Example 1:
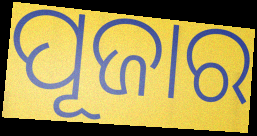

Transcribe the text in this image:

ପୂଜାର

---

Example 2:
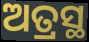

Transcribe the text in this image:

ଅତ୍ରସ୍ଥ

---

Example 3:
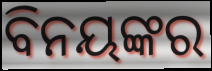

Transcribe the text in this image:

ବିନୟଙ୍କର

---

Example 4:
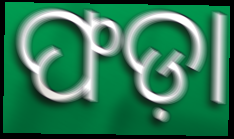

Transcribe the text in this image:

ଫଡ଼ା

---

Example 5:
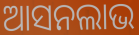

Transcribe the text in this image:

ଆସନଲାଭ